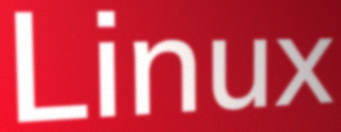
Linux